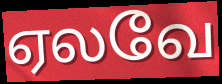
ஏலவே